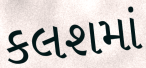
કલશમાં